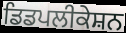
ਡਿਡਪਲੀਕੇਸ਼ਨ